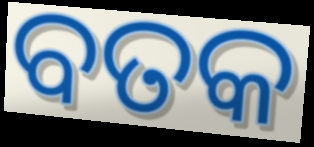
ବତକ